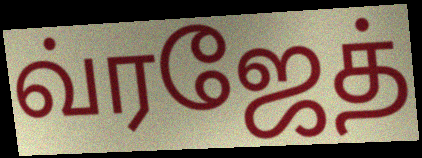
வ்ரஜேத்